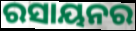
ରସାୟନର